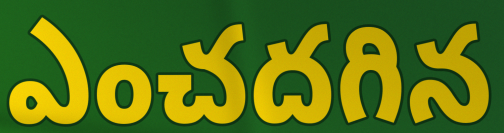
ఎంచదగిన